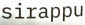
sirappu